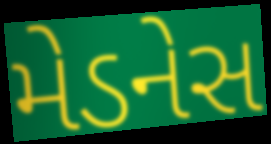
મેડનેસ